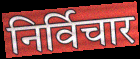
निर्विचार